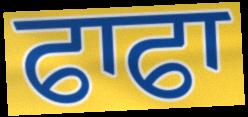
ਫਾਫਾ